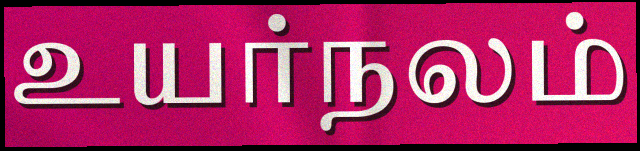
உயர்நலம்